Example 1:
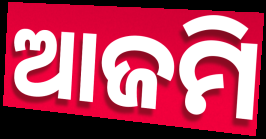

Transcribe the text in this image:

ଆଜମି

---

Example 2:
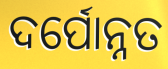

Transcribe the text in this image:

ଦର୍ପୋନ୍ନତ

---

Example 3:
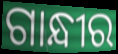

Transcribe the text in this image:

ଗାନ୍ଧୀର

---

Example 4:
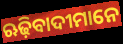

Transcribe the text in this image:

ଋଢ଼ିବାଦୀମାନେ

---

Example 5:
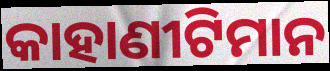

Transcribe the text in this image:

କାହାଣୀଟିମାନ